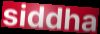
siddha